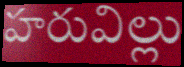
హరువిల్లు